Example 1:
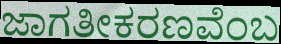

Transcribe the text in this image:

ಜಾಗತೀಕರಣವೆಂಬ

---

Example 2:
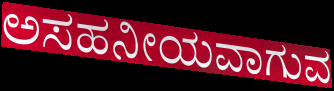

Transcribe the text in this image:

ಅಸಹನೀಯವಾಗುವ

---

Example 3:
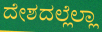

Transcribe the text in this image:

ದೇಶದಲ್ಲೆಲ್ಲಾ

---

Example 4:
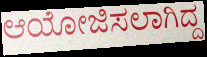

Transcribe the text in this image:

ಆಯೋಜಿಸಲಾಗಿದ್ದ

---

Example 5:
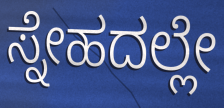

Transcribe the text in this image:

ಸ್ನೇಹದಲ್ಲೇ